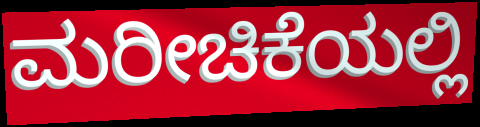
ಮರೀಚಿಕೆಯಲ್ಲಿ